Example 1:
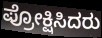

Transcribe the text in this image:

ಪ್ರೋಕ್ಷಿಸಿದರು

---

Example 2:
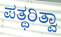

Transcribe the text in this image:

ಪತ್ಥರಿತ್ವಾ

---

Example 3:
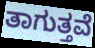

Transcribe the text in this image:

ತಾಗುತ್ತವೆ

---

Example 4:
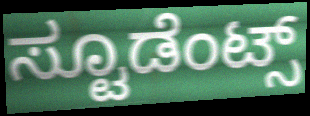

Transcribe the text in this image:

ಸ್ಟೂಡೆಂಟ್ಸ್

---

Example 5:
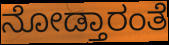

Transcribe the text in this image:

ನೋಡ್ತಾರಂತೆ